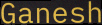
Ganesh